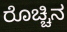
ರೊಚ್ಚಿನ